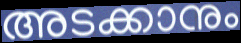
അടക്കാനും